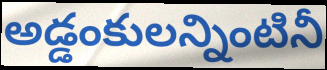
అడ్డంకులన్నింటినీ